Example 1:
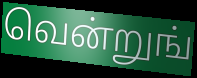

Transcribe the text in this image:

வென்றுங்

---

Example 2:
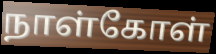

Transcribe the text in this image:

நாள்கோள்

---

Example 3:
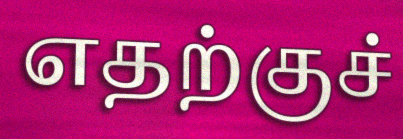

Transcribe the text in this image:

எதற்குச்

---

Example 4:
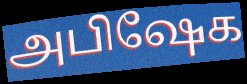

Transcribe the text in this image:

அபிஷேக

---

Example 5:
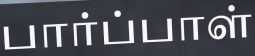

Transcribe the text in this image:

பார்ப்பாள்